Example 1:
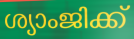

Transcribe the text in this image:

ശ്യാംജിക്ക്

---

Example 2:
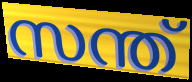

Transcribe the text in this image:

സന്ത്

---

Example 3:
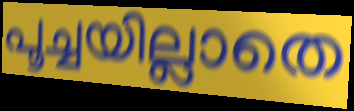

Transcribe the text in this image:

പൂച്ചയില്ലാതെ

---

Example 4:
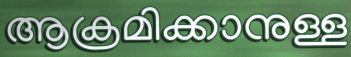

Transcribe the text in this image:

ആക്രമിക്കാനുള്ള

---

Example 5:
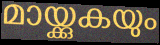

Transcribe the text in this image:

മായ്ക്കുകയും